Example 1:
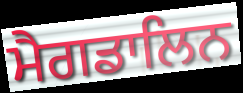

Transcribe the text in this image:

ਮੈਗਡਾਲਿਨ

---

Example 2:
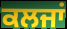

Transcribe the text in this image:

ਕਲਜਾਂ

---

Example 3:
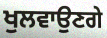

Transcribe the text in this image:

ਖੁਲਵਾਉਣਗੇ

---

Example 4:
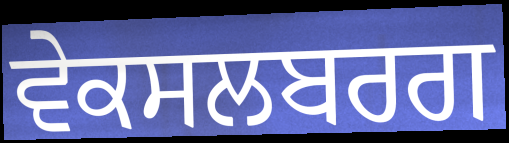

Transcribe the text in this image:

ਵੇਕਸਲਬਰਗ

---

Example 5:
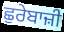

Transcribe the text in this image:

ਛੁਰੇਬਾਜ਼ੀ